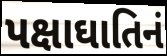
પક્ષાઘાતિનં